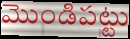
మొండిపట్టు